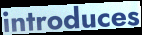
introduces